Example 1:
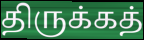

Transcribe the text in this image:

திருக்கத்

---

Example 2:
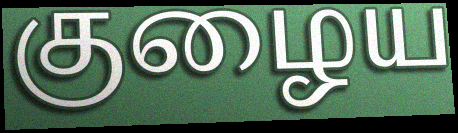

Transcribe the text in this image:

குழைய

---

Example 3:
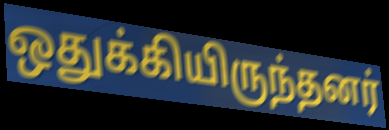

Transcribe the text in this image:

ஒதுக்கியிருந்தனர்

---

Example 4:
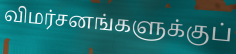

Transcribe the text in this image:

விமர்சனங்களுக்குப்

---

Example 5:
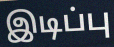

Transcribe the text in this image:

இடிப்பு